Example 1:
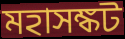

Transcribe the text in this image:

মহাসঙ্কট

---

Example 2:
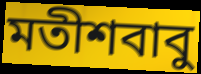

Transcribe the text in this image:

মতীশবাবু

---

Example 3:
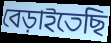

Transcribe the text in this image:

বেড়াইতেছি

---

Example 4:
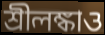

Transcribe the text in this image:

শ্রীলঙ্কাও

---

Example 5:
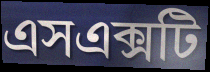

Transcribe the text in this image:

এসএক্সটি